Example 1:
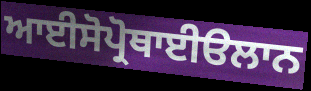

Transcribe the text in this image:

ਆਈਸੋਪ੍ਰੋਥਾਈੳਲਾਨ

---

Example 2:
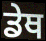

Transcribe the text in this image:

ਡੇਥ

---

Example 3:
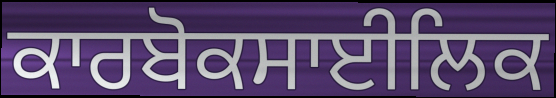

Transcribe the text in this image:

ਕਾਰਬੋਕਸਾਈਲਿਕ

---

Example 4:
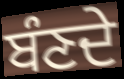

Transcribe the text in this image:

ਬੰਣਦੇ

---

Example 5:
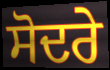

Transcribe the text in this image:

ਸੋਦਰੇ